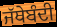
ਜੱਥੇਬੰਦੀ